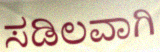
ಸಡಿಲವಾಗಿ